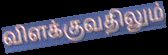
விளக்குவதிலும்